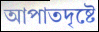
আপাতদৃষ্টে